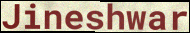
Jineshwar